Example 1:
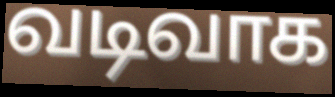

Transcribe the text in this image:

வடிவாக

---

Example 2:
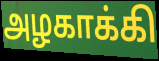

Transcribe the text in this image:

அழகாக்கி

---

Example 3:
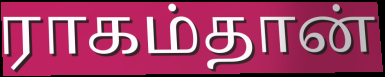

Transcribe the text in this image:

ராகம்தான்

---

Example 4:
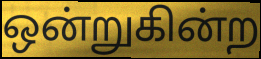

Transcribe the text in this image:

ஒன்றுகின்ற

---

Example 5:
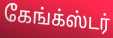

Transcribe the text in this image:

கேங்க்ஸ்டர்